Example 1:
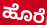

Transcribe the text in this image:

ಹೊರೆ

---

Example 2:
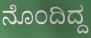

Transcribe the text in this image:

ನೊಂದಿದ್ದ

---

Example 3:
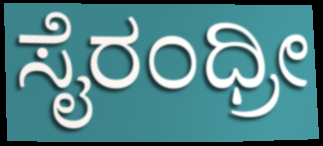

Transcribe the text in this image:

ಸೈರಂಧ್ರೀ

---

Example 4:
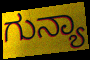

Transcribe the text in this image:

ಗುನ್ಯಾ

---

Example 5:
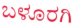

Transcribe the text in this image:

ಬಳೂರಗಿ